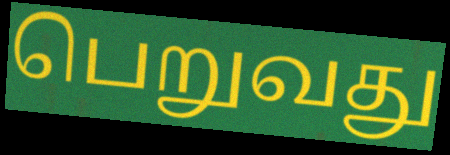
பெறுவது